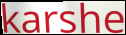
karshe